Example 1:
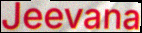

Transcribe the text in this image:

Jeevana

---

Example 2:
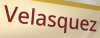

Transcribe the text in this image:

Velasquez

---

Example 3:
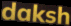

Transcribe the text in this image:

daksh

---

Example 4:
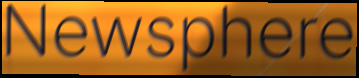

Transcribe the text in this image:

Newsphere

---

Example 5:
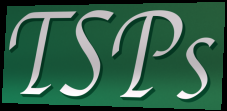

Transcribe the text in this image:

TSPs